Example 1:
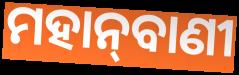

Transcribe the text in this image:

ମହାନ୍‌ବାଣୀ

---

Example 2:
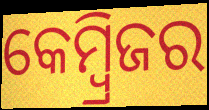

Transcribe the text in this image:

କେମ୍ବ୍ରିଜର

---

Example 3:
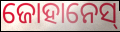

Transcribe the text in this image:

ଜୋହାନେସ୍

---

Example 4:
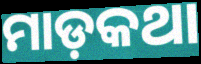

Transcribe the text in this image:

ମାଡ଼କଥା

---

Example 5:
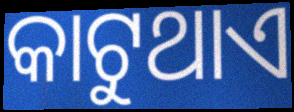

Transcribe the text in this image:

କାଟୁଥାଏ